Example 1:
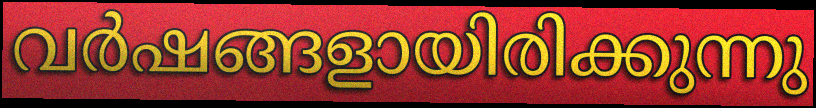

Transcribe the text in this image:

വർഷങ്ങളായിരിക്കുന്നു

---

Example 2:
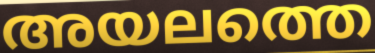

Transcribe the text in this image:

അയലത്തെ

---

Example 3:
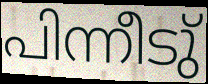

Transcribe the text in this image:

പിന്നീടു്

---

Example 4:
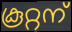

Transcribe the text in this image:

കൂറ്റന്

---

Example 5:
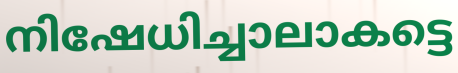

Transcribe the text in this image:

നിഷേധിച്ചാലാകട്ടെ